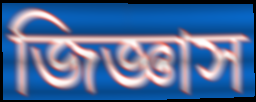
জিজ্ঞাস